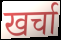
खर्चा